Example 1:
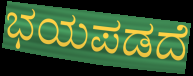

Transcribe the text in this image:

ಭಯಪಡದೆ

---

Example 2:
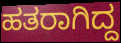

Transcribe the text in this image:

ಹತರಾಗಿದ್ದ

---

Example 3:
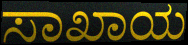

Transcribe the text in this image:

ಸಾಖಾಯ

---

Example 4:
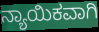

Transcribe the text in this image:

ನ್ಯಾಯಿಕವಾಗಿ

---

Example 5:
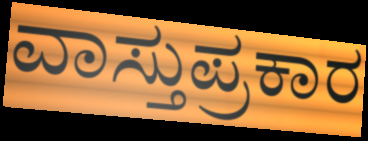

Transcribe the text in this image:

ವಾಸ್ತುಪ್ರಕಾರ